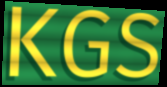
KGS